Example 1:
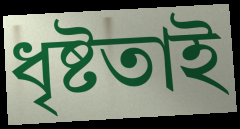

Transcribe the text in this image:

ধৃষ্টতাই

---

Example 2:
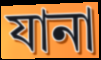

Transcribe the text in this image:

যানা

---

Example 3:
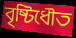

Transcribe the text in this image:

বৃষ্টিধৌত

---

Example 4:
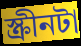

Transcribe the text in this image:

স্ক্রীনটা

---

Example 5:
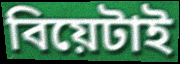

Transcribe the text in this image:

বিয়েটাই